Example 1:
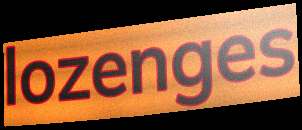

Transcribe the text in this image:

lozenges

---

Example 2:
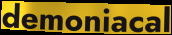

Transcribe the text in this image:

demoniacal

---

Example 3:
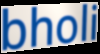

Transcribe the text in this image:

bholi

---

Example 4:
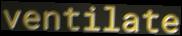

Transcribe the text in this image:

ventilate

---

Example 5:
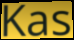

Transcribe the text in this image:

Kas